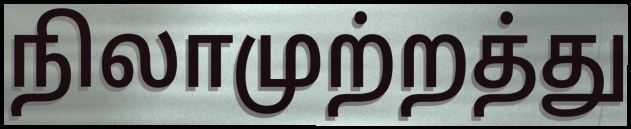
நிலாமுற்றத்து